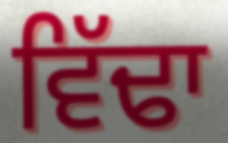
ਵਿੱਢਾ